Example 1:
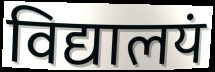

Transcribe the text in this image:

विद्यालयं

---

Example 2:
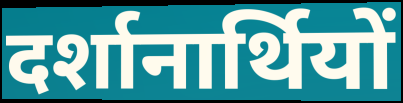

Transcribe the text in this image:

दर्शानार्थियों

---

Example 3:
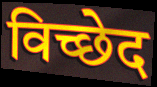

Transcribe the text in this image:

विच्छेद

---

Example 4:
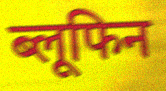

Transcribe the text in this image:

ब्लूफिन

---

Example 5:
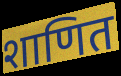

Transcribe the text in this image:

शाणित